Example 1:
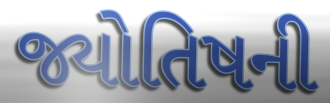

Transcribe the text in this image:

જ્યોતિષની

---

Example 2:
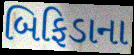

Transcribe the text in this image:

બિફિડાના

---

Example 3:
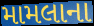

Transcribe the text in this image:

મામલાના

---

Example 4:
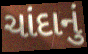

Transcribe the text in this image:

ચાંદાનું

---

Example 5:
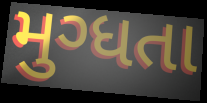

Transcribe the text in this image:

મુગ્ધતા